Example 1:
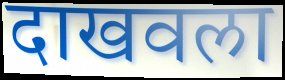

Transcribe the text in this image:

दाखवला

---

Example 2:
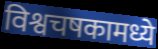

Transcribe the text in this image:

विश्वचषकामध्ये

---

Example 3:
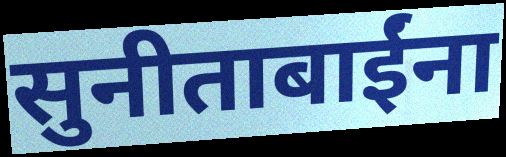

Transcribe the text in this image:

सुनीताबाईंना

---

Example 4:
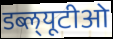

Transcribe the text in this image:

डब्ल्यूटीओ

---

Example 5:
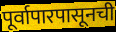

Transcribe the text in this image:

पूर्वापारपासूनची